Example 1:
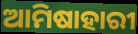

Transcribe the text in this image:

ଆମିଷାହାରୀ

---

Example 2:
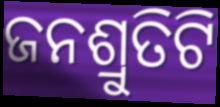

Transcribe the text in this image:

ଜନଶ୍ରୁତିଟି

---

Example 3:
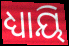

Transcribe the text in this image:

ଧ୍ୟାୟି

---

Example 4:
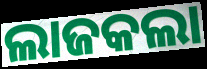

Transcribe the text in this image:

ଲାଜକଲା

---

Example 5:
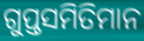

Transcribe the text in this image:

ଗୁପ୍ତସମିତିମାନ